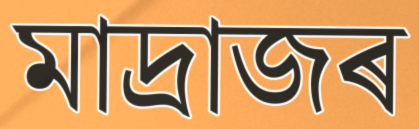
মাদ্ৰাজৰ